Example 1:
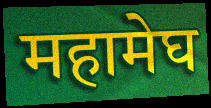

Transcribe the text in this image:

महामेघ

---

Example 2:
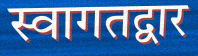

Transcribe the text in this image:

स्वागतद्वार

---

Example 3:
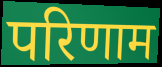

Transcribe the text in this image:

परिणाम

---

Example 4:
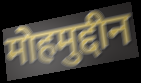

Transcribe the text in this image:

मोहमुद्दीन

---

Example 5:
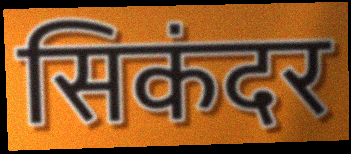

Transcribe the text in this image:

सिकंदर